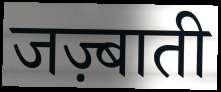
जज़्बाती